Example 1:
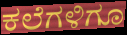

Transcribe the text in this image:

ಕಲೆಗಳಿಗೂ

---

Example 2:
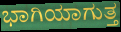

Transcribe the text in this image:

ಭಾಗಿಯಾಗುತ್ತ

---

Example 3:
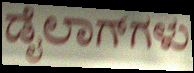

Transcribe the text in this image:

ಡೈಲಾಗ್‌ಗಳು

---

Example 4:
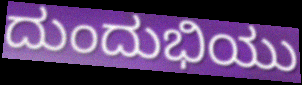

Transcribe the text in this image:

ದುಂದುಭಿಯು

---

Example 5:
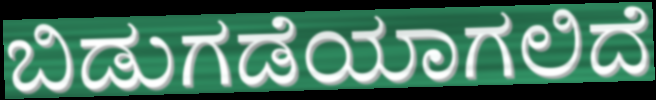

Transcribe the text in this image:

ಬಿಡುಗಡೆಯಾಗಲಿದೆ